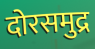
दोरसमुद्र